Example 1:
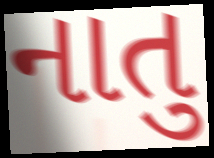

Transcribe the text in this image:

નાતુ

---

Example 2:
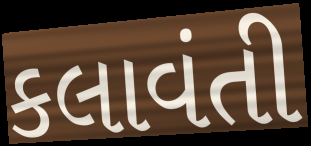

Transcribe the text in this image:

કલાવંતી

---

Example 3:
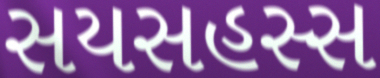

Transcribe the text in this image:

સયસહસ્સ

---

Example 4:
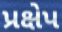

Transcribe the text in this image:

પ્રક્ષેપ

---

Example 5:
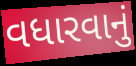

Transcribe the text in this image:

વધારવાનું